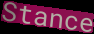
Stance